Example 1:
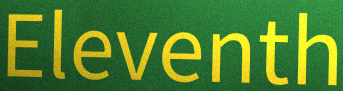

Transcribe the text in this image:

Eleventh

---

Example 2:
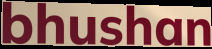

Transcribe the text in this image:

bhushan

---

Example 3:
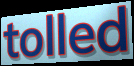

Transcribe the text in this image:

tolled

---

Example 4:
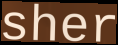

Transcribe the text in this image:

sher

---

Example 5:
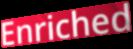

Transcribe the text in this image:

Enriched